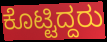
ಕೊಟ್ಟಿದ್ದರು